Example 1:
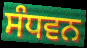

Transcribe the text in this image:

ਸੰਧਵਨ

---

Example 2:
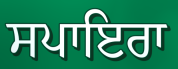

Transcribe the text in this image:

ਸਪਾਇਰਾ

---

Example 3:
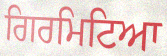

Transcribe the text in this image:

ਗਿਰਮਿਟਿਆ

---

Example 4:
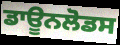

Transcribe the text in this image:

ਡਾਊਨਲੋਡਸ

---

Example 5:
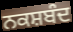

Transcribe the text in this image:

ਨਕਸ਼ਬੰਦ